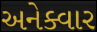
અનેક્વાર